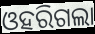
ଓହରିଗଲା